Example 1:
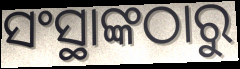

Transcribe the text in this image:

ସଂସ୍ଥାଙ୍କଠାରୁ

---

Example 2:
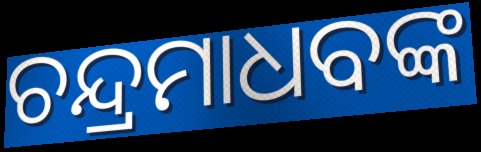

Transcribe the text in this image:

ଚନ୍ଦ୍ରମାଧବଙ୍କ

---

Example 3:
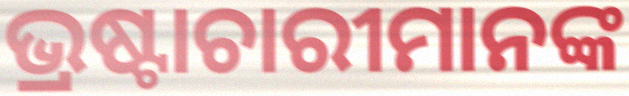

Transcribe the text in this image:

ଭ୍ରଷ୍ଟାଚାରୀମାନଙ୍କ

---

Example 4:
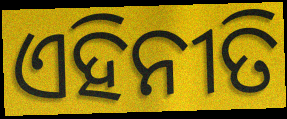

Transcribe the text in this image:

ଏହିନୀତି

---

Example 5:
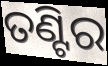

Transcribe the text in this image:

ତଣ୍ଟିର